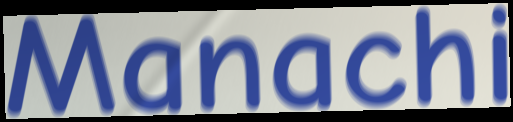
Manachi